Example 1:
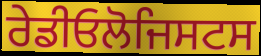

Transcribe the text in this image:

ਰੇਡੀਓਲੋਜਿਸਟਸ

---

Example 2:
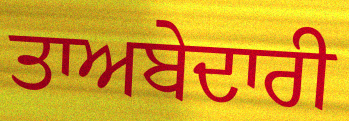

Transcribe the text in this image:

ਤਾਅਬੇਦਾਰੀ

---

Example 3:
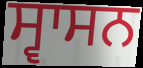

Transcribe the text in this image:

ਸ੍ਵਾਸਨ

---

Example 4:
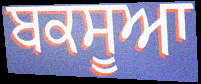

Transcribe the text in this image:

ਬਕਸੂਆ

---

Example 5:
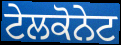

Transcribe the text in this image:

ਟੇਲਕੋਨੇਟ